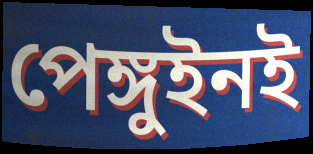
পেঙ্গুইনই